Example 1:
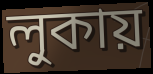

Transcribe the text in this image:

লুকায়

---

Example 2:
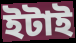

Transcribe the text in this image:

ইটাই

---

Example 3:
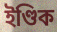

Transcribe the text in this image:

ইণ্ডিক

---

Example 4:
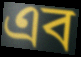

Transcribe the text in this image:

এব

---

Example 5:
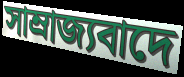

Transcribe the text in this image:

সাম্ৰাজ্যবাদে